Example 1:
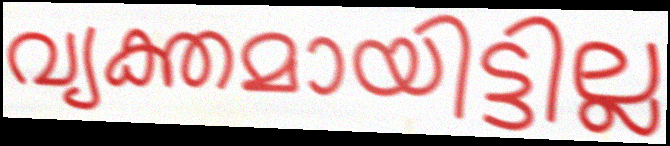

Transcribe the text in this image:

വ്യക്തമായിട്ടില്ല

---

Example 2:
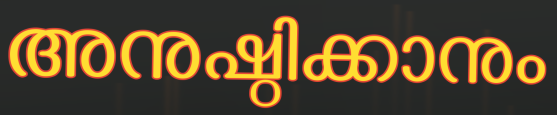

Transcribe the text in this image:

അനുഷ്ഠിക്കാനും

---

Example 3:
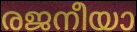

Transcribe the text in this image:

രജനീയാ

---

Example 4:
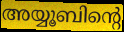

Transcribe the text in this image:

അയ്യൂബിന്റെ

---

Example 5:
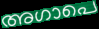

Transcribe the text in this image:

അഗാപെ